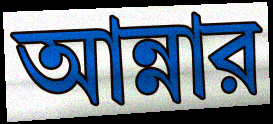
আন্নার